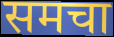
समचा